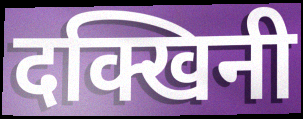
दक्खिनी